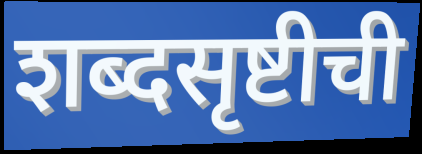
शब्दसृष्टीची